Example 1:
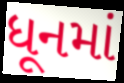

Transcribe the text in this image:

ધૂનમાં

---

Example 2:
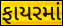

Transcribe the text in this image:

ફાયરમાં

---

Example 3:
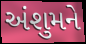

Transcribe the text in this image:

અંશુમને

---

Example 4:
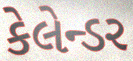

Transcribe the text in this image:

કેલેન્ડર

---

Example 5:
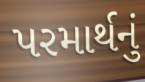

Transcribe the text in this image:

પરમાર્થનું